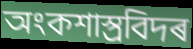
অংকশাস্ত্ৰবিদৰ